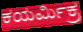
ಕಯರ್ಮಿಕ್ರ